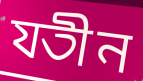
যতীন